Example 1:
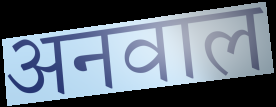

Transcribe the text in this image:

अनवाल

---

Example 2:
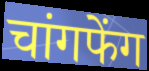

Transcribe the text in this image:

चांगफेंग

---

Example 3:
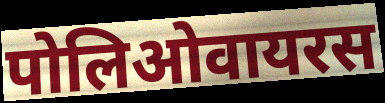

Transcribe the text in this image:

पोलिओवायरस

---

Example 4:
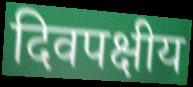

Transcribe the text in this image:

दिवपक्षीय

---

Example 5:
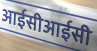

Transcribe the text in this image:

आईसीआईसी